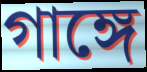
গাঙ্গে